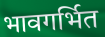
भावगर्भित